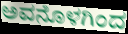
ಅವನೊಳಗಿಂದ